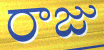
రాజు